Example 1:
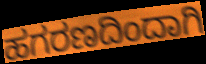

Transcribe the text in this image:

ಹಗರಣದಿಂದಾಗಿ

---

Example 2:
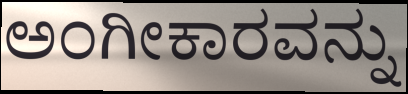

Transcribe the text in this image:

ಅಂಗೀಕಾರವನ್ನು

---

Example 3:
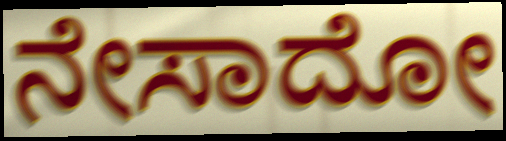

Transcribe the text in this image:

ನೇಸಾದೋ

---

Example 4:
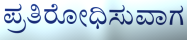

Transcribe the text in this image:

ಪ್ರತಿರೋಧಿಸುವಾಗ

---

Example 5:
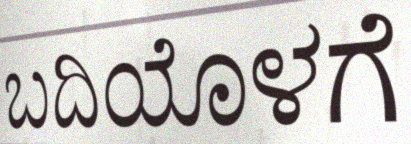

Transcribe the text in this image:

ಬದಿಯೊಳಗೆ